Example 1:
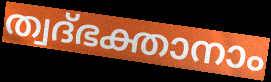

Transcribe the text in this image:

ത്വദ്ഭക്താനാം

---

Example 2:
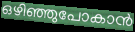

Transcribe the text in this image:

ഒഴിഞ്ഞുപോകാൻ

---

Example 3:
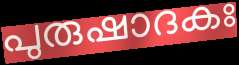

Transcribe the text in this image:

പുരുഷാദകഃ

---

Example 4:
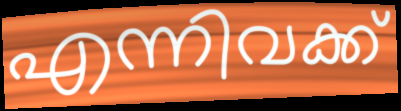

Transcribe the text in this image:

എന്നിവക്ക്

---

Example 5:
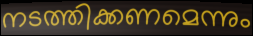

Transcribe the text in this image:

നടത്തിക്കണമെന്നും